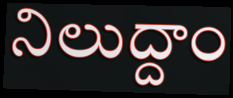
నిలుద్దాం